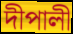
দীপালী